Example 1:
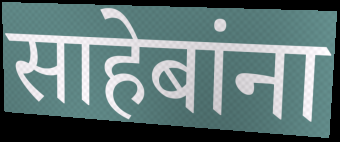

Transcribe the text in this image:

साहेबांना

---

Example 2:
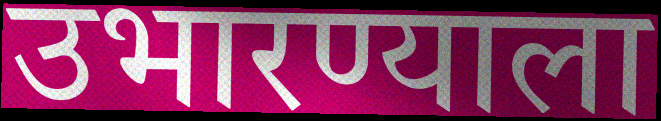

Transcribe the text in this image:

उभारण्याला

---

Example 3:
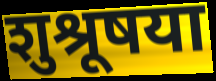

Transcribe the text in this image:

शुश्रूषया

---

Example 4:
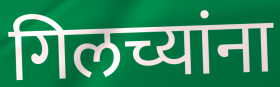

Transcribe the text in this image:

गिलच्यांना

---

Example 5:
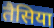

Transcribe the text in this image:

तैसिया